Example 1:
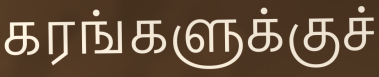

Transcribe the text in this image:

கரங்களுக்குச்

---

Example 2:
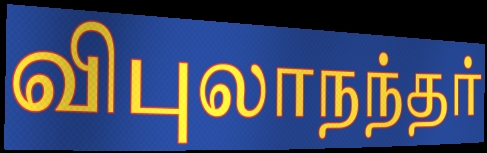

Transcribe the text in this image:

விபுலாநந்தர்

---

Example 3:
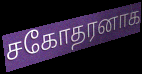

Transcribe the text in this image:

சகோதரனாக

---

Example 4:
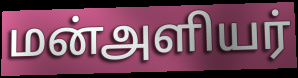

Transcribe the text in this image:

மன்அளியர்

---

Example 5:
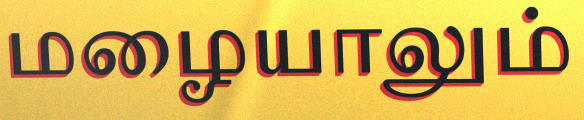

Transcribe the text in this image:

மழையாலும்